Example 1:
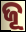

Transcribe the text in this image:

ଜୂ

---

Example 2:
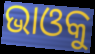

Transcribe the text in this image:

ଭାଓକୁ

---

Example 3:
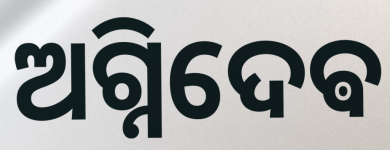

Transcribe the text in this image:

ଅଗ୍ନିଦେଵ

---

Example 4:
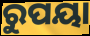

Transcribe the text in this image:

ରୁପୟା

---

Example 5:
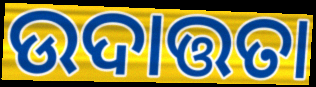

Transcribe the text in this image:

ଉଦାତ୍ତତା